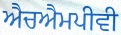
ਐਚਐਮਪੀਵੀ